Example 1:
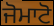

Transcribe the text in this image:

ਜੋਮਾਟੋ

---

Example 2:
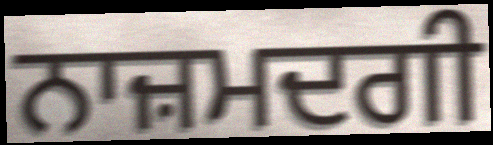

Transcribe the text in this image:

ਨਾਜ਼ਮਦਗੀ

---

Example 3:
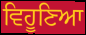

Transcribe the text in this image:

ਵਿਹੂਣਿਆ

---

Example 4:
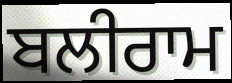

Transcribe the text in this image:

ਬਲੀਰਾਮ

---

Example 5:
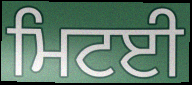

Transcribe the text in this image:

ਮਿਟਈ